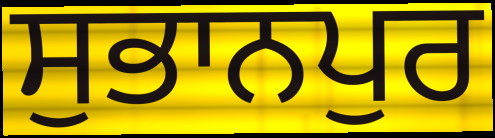
ਸੁਭਾਨਪੁਰ